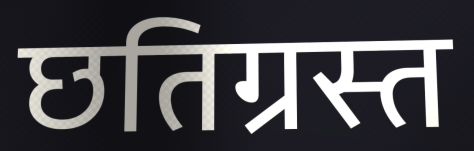
छतिग्रस्त